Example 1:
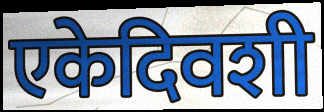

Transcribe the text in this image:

एकेदिवशी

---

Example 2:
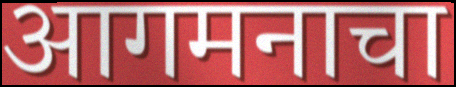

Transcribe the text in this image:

आगमनाचा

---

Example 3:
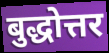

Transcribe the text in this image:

बुद्धोत्तर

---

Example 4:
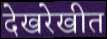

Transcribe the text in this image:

देखरेखीत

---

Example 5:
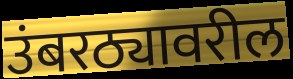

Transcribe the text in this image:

उंबरठ्यावरील